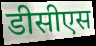
डीसीएस